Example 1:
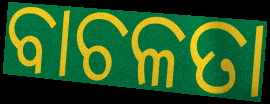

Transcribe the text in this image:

ବାଚଳତା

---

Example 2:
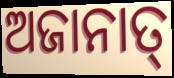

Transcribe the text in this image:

ଅଜାନାତ୍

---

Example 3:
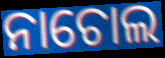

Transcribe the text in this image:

ନାଚୋଲ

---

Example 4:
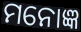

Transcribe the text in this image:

ମନୋଜ୍ଞ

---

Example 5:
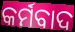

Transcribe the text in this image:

କର୍ମବାଦ